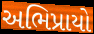
અભિપ્રાયો